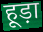
हूड़ा